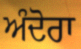
ਅੰਦੋਰਾ